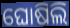
ଘୋଷିଲି